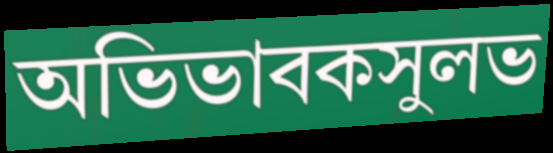
অভিভাবকসুলভ